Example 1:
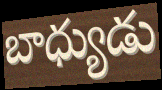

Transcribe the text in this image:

బాధ్యుడు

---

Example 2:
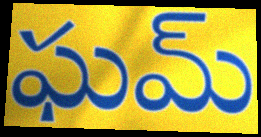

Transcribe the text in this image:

ఘమ్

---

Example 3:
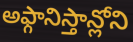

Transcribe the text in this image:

అఫ్గానిస్తాన్లోని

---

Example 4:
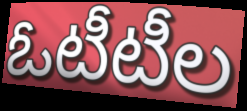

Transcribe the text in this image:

ఓటీటీల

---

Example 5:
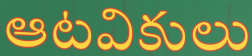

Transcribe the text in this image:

ఆటవికులు